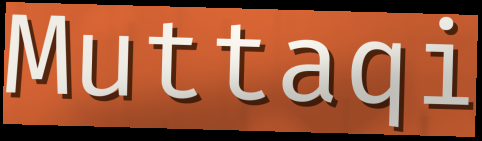
Muttaqi